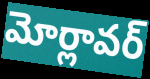
మోర్లావర్